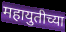
महायुतीच्या